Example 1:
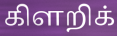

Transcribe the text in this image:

கிளறிக்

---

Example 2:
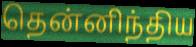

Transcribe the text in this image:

தென்னிந்திய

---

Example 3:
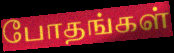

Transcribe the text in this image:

போதங்கள்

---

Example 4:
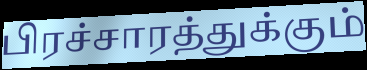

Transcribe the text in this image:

பிரச்சாரத்துக்கும்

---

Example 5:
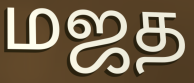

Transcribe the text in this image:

மஜத